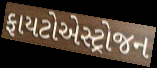
ફાયટોએસ્ટ્રોજન